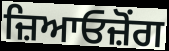
ਜ਼ਿਆਓਜ਼ੋਂਗ